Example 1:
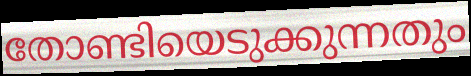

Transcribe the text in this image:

തോണ്ടിയെടുക്കുന്നതും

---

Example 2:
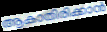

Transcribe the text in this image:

ആകാതിരിക്കാൻ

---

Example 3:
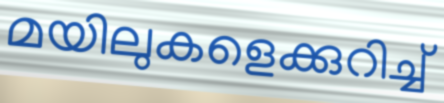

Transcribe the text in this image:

മയിലുകളെക്കുറിച്ച്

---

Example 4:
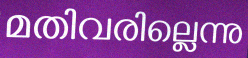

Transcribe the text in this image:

മതിവരില്ലെന്നു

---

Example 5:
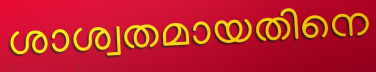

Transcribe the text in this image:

ശാശ്വതമായതിനെ